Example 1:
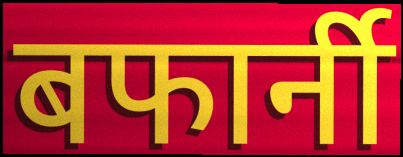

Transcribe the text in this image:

बफार्नी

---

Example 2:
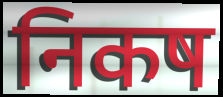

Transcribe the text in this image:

निकष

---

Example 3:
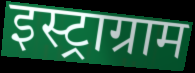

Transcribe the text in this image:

इस्ट्राग्राम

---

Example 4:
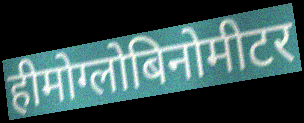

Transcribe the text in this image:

हीमोग्लोबिनोमीटर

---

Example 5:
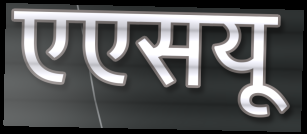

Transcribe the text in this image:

एएसयू